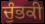
ਚੁੰਭਕੀ